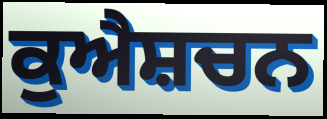
ਕੁਐਸ਼ਚਨ